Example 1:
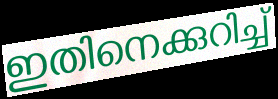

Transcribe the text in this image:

ഇതിനെക്കുറിച്ച്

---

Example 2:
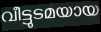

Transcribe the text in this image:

വീട്ടുടമയായ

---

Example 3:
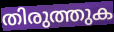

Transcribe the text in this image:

തിരുത്തുക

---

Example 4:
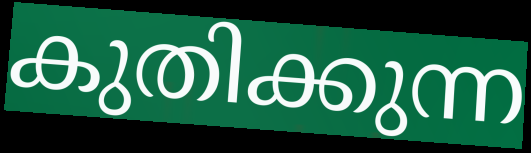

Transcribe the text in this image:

കുതിക്കുന്ന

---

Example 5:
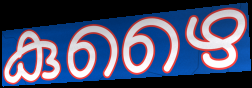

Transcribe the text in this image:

കുഴൈ